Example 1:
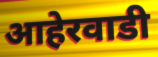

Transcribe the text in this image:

आहेरवाडी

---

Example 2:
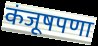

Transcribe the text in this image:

कंजूषपणा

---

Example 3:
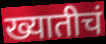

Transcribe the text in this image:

ख्यातीचं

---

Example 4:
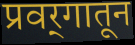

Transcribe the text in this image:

प्रवर्गातून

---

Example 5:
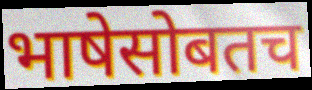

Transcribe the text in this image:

भाषेसोबतच